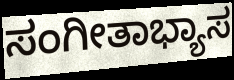
ಸಂಗೀತಾಭ್ಯಾಸ